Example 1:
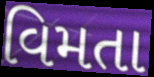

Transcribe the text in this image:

વિમતા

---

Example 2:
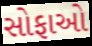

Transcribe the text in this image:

સોફાઓ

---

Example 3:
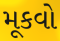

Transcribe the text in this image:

મૂકવો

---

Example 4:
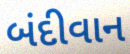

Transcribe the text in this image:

બંદીવાન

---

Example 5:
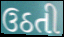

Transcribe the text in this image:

ઉઠતી